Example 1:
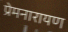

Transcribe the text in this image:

प्रेमनारायण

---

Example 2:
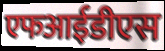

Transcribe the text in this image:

एफआईडीएस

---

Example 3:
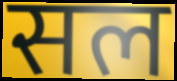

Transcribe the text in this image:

सल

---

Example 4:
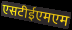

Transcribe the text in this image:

एसटीईएमएम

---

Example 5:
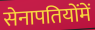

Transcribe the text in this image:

सेनापतियोंमें